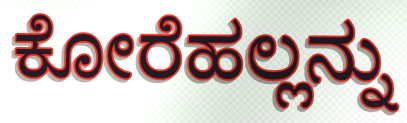
ಕೋರೆಹಲ್ಲನ್ನು